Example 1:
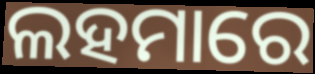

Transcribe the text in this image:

ଲହମାରେ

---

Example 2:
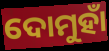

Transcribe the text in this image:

ଦୋମୁହାଁ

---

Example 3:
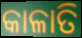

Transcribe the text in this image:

କାଳାତି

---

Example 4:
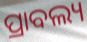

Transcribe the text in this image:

ପ୍ରାବଲ୍ୟ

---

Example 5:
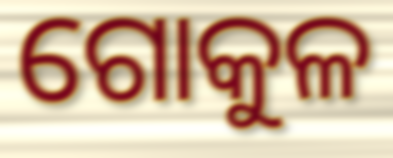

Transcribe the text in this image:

ଗୋକୁଳ